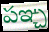
పఞ్చ